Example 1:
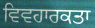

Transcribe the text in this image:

ਵਿਵਹਾਰਕਤਾ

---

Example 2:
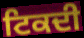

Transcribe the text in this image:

ਟਿਕਦੀ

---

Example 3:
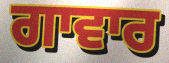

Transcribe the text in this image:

ਗਾਵਾਰ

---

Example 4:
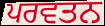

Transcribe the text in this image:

ਪਰਵਤਨ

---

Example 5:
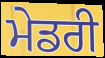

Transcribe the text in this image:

ਮੇਡਰੀ